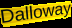
Dalloway